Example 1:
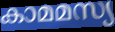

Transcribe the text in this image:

കാമമസ്യ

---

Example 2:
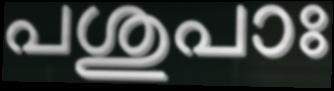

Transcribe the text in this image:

പശുപാഃ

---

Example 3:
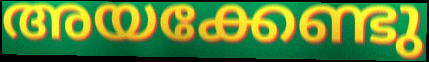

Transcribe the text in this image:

അയക്കേണ്ടു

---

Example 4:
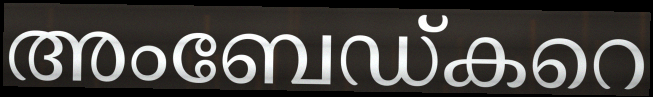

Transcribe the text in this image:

അംബേഡ്കറെ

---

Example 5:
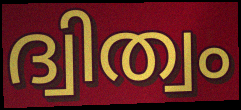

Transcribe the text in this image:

ദ്വിത്വം